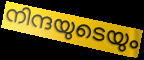
നിന്ദയുടെയും